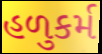
હળુકર્મ